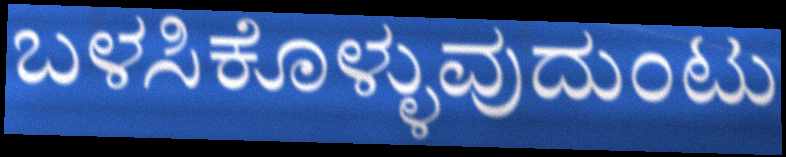
ಬಳಸಿಕೊಳ್ಳುವುದುಂಟು